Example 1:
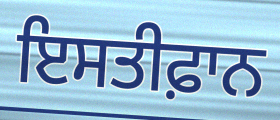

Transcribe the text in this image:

ਇਸਤੀਫ਼ਾਨ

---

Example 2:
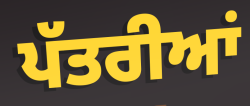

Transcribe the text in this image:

ਪੱਤਰੀਆਂ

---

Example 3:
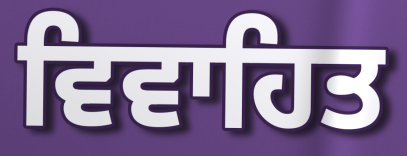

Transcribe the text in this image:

ਵਿਵਾਹਿਤ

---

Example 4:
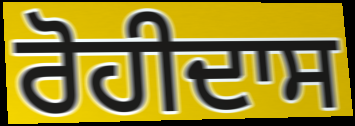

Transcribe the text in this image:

ਰੋਹੀਦਾਸ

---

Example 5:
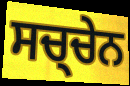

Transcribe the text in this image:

ਸਚ੍ਚੇਨ